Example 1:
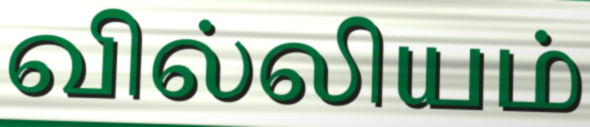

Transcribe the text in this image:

வில்லியம்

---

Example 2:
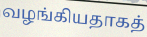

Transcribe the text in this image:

வழங்கியதாகத்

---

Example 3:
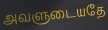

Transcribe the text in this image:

அவளுடையதே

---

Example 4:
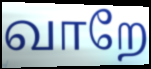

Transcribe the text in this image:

வாறே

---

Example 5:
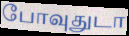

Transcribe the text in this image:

போவுதுடா